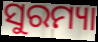
ସୁରମ୍ୟା